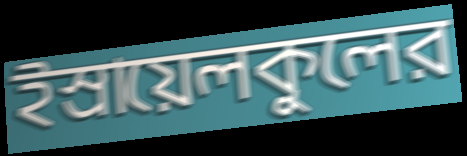
ইস্রায়েলকুলের